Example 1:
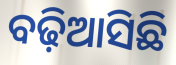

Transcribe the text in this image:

ବଢ଼ିଆସିଛି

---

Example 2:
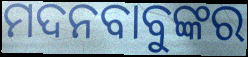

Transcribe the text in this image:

ମଦନବାବୁଙ୍କର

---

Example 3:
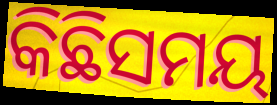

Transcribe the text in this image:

କିଛିସମୟ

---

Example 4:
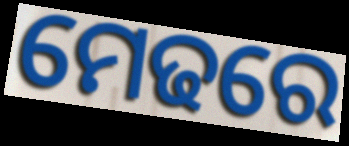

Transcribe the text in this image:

ମେଢରେ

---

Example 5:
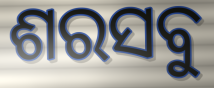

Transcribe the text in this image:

ଶରସବୁ